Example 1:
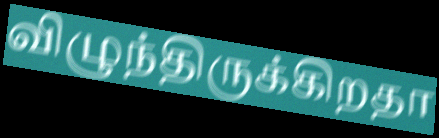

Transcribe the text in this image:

விழுந்திருக்கிறதா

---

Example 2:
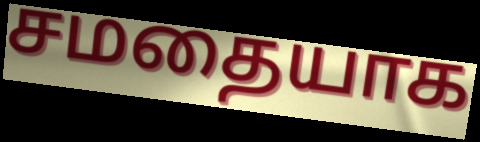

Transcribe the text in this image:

சமதையாக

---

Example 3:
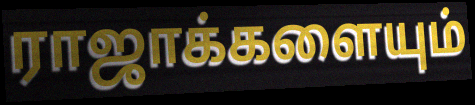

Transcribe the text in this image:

ராஜாக்களையும்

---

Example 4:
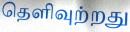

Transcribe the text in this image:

தெளிவுற்றது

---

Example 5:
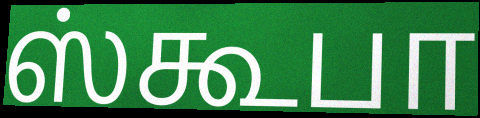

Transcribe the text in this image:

ஸ்கூபா